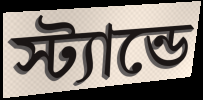
স্ট্যান্ডে